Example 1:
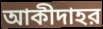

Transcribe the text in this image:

আকীদাহর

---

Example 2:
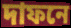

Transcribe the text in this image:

দাফনে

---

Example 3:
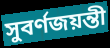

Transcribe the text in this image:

সুবর্ণজয়ন্তী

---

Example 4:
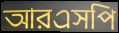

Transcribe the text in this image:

আরএসপি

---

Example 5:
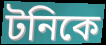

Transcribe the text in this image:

টনিকে